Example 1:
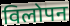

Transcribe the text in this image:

विलोपन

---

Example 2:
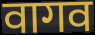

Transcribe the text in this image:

वागव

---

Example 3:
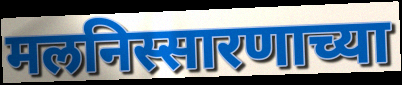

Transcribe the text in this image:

मलनिस्सारणाच्या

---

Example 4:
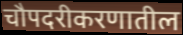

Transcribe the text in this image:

चौपदरीकरणातील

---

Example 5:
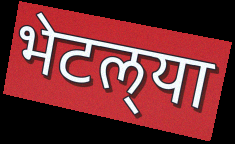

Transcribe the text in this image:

भेटल्या